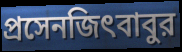
প্রসেনজিৎবাবুর